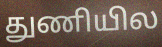
துணியில